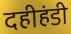
दहीहंडी